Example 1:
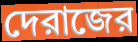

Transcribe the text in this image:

দেরাজের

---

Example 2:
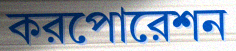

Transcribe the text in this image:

করপোরেশন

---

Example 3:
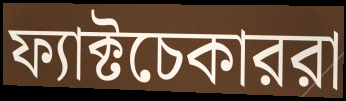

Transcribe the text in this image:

ফ্যাক্টচেকাররা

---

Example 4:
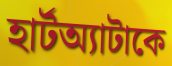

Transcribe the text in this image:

হার্টঅ্যাটাকে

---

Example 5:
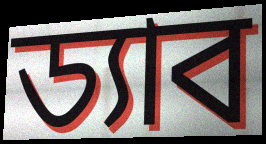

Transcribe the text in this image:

ড্যাব